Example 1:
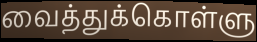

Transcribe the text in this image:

வைத்துக்கொள்ளு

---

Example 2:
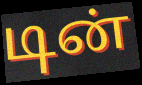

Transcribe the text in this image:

டின்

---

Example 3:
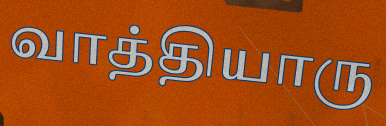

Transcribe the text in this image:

வாத்தியாரு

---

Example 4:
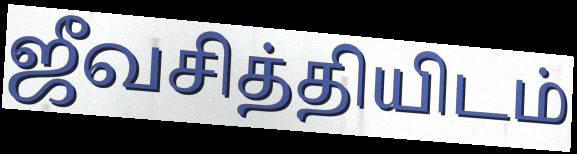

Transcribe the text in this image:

ஜீவசித்தியிடம்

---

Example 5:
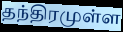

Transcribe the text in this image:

தந்திரமுள்ள